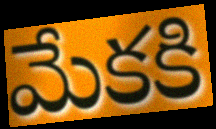
మేకకి